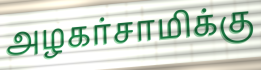
அழகர்சாமிக்கு